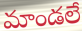
మాండలే